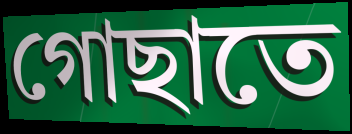
গোছাতে